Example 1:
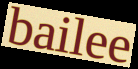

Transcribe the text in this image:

bailee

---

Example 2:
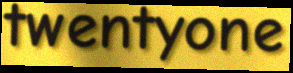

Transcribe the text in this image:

twentyone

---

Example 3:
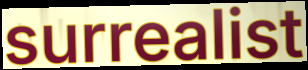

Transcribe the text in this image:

surrealist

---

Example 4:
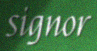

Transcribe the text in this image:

signor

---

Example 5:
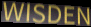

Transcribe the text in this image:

WISDEN